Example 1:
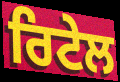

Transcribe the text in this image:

ਰਿਟੇਲ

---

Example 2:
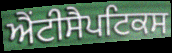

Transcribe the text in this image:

ਐਂਟੀਸੈਪਟਿਕਸ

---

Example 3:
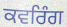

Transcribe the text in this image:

ਕਵਰਿੰਗ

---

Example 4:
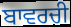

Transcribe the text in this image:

ਬਾਵਰਚੀ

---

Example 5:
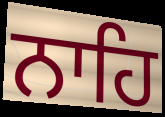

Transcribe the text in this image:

ਨਾਹਿ